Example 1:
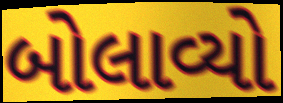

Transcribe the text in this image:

બોલાવ્યો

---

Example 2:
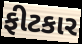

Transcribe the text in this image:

ફીટકાર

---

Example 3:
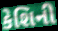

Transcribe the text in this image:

કેશિની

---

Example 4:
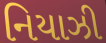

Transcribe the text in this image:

નિયાઝી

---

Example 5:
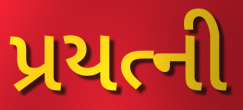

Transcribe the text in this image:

પ્રયત્ની